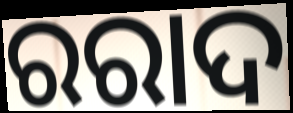
ରରାଦ